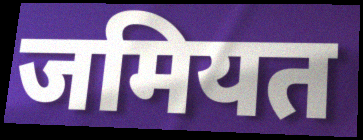
जमियत